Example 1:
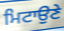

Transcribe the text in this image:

ਮਿਟਾਉਣੇ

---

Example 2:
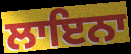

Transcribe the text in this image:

ਲਾਇਨਾ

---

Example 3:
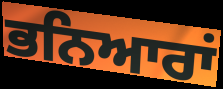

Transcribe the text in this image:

ਭਨਿਆਰਾਂ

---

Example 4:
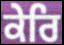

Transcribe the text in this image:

ਕੇਰਿ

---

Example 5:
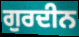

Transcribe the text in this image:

ਗੁਰਦੀਨ